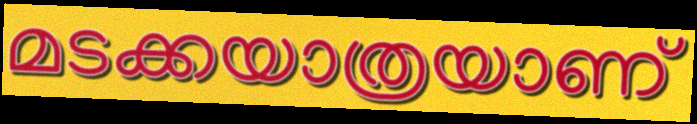
മടക്കയാത്രയാണ്